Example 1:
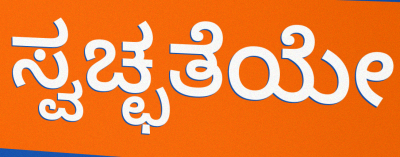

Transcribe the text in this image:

ಸ್ವಚ್ಛತೆಯೇ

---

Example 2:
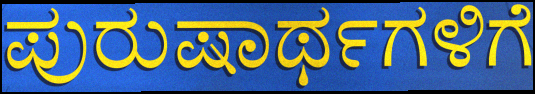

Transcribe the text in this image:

ಪುರುಷಾರ್ಥಗಳಿಗೆ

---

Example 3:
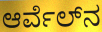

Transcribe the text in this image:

ಆರ್ವೆಲ್‍ನ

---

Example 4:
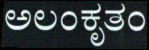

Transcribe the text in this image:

ಅಲಂಕೃತಂ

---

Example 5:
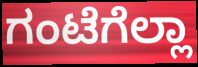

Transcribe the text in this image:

ಗಂಟೆಗೆಲ್ಲಾ